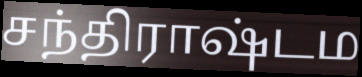
சந்திராஷ்டம